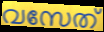
വസേത്